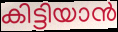
കിട്ടിയാൻ